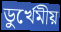
ডুর্খেমীয়